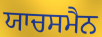
ਯਾਚਸਮੈਨ